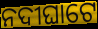
ନଦୀଘାଟେ